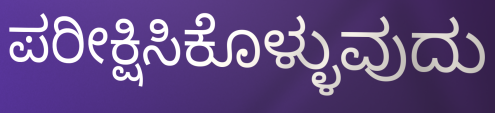
ಪರೀಕ್ಷಿಸಿಕೊಳ್ಳುವುದು